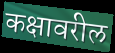
कक्षावरील